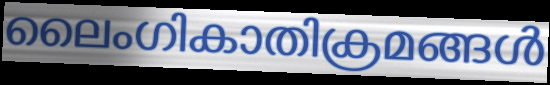
ലൈംഗികാതിക്രമങ്ങൾ